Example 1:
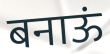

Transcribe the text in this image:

बनाऊं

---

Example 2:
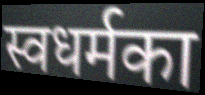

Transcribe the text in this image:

स्वधर्मका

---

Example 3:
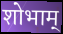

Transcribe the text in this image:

शोभाम्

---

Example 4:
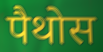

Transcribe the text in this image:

पैथोस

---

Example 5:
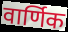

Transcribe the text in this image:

वार्णिक